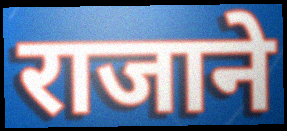
राजाने